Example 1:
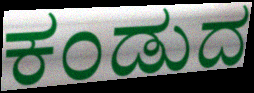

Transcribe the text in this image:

ಕಂಡುದ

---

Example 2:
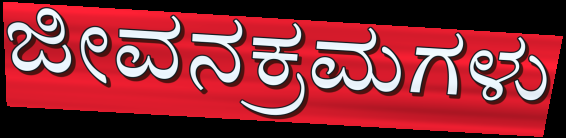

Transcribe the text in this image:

ಜೀವನಕ್ರಮಗಳು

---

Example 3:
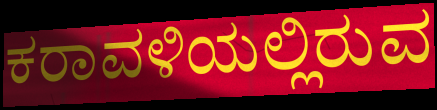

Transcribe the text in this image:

ಕರಾವಳಿಯಲ್ಲಿರುವ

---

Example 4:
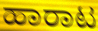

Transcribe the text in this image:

ಹಾರಾಟ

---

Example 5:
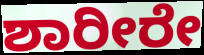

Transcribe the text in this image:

ಶಾರೀರೇ